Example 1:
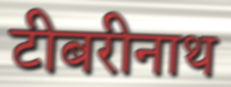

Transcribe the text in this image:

टीबरीनाथ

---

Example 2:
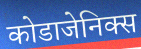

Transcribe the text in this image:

कोडाजेनिक्स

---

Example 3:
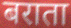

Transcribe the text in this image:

बराता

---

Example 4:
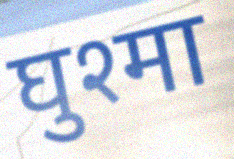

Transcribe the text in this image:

घुश्मा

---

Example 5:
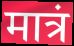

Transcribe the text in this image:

मात्रं